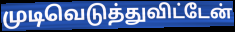
முடிவெடுத்துவிட்டேன்